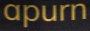
apurn